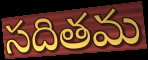
సదితమ